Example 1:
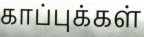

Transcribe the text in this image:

காப்புக்கள்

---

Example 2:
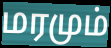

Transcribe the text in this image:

மரமும்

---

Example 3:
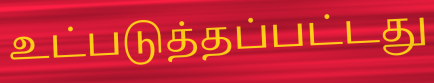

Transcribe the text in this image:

உட்படுத்தப்பட்டது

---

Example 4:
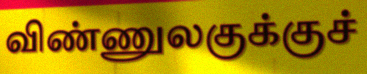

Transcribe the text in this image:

விண்ணுலகுக்குச்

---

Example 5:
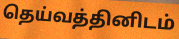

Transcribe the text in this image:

தெய்வத்தினிடம்